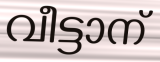
വീട്ടാന്